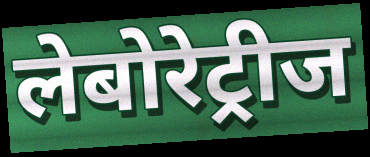
लेबोरेट्रीज